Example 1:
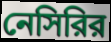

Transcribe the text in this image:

নেসিরির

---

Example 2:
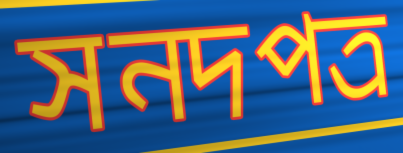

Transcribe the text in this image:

সনদপত্র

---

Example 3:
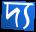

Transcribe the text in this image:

দ্য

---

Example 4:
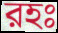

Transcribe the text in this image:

রহঃ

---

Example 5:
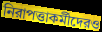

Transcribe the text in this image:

নিরাপত্তাকর্মীদেরও